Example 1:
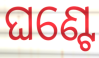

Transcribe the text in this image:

ଘଣ୍ଟେ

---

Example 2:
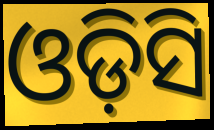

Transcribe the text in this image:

ଓଡ଼ିସି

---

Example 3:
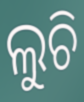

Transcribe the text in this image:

ଲୁଚି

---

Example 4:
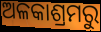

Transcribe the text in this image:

ଅଳକାଶ୍ରମରୁ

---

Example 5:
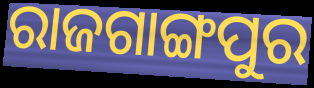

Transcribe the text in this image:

ରାଜଗାଙ୍ଗପୁର